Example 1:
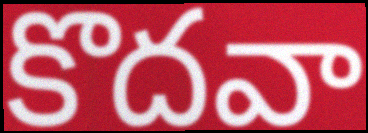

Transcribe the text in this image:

కొదవా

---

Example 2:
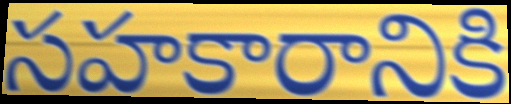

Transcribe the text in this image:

సహకారానికి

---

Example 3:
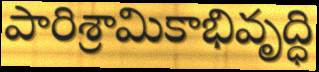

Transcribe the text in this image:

పారిశ్రామికాభివృద్ధి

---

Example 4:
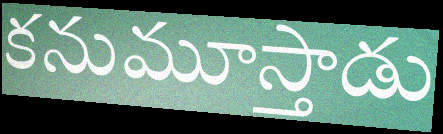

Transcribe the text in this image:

కనుమూస్తాడు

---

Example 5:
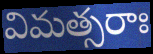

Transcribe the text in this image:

విమత్సరాః